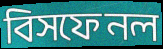
বিসফেনল